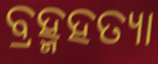
ବ୍ରହ୍ମହତ୍ୟା